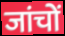
जांचों